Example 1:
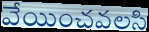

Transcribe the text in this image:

వేయించవలసి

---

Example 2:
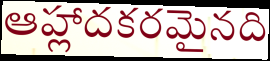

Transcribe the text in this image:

ఆహ్లాదకరమైనది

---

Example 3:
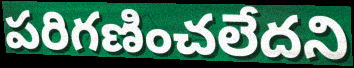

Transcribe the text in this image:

పరిగణించలేదని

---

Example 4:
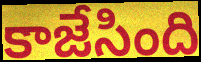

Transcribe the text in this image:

కాజేసింది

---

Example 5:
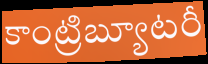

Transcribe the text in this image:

కాంట్రిబ్యూటరీ